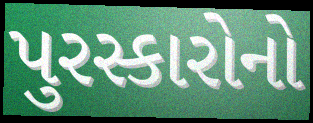
પુરસ્કારોનો